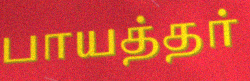
பாயத்தர்